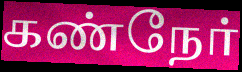
கண்நேர்